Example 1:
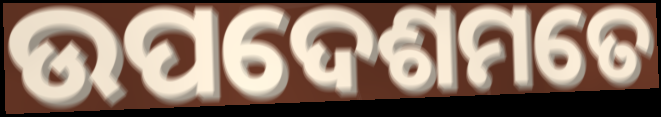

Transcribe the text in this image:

ଉପଦେଶମତେ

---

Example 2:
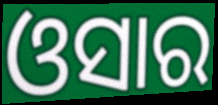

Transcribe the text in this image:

ଓସାର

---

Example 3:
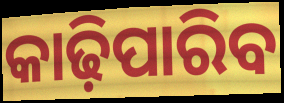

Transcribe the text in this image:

କାଢ଼ିପାରିବ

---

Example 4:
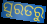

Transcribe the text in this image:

ସୁରତରୁ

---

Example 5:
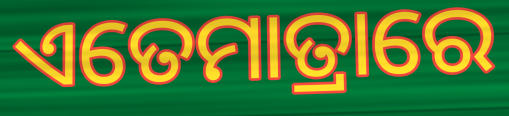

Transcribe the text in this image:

ଏତେମାତ୍ରାରେ